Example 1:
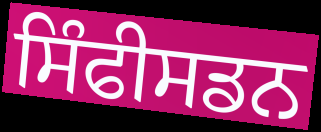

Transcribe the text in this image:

ਸਿੰਫੀਸਡਨ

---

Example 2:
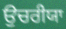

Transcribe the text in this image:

ਉਚਰੀਯਾ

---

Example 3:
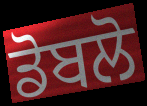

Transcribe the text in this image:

ਡੋਬਲੋ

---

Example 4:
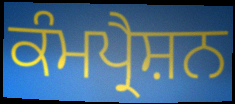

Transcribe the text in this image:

ਕੰਮਪ੍ਰੈਸ਼ਨ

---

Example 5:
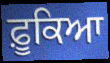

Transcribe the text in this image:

ਫ਼ੂਕਿਆ